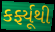
કર્ફ્યૂથી